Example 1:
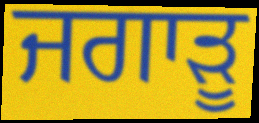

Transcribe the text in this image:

ਜਗਾੜੂ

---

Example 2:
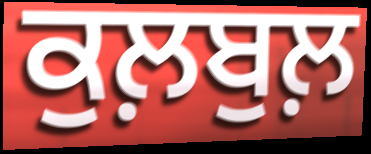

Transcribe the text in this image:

ਕੁਲ਼ਬੁਲ਼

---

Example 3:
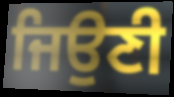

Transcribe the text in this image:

ਜਿਉਣੀ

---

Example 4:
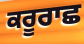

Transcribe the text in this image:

ਕਰੂਰਾਛ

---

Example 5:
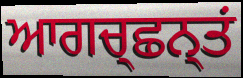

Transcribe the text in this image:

ਆਗਚ੍ਛਨ੍ਤਂ